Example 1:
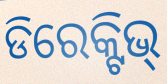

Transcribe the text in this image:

ଡିରେକ୍ଟିଭ୍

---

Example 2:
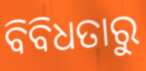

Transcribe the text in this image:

ବିବିଧତାରୁ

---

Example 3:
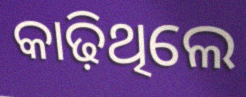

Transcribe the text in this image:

କାଢ଼ିଥିଲେ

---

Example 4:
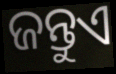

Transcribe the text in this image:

ଜନ୍ତୁଏ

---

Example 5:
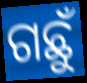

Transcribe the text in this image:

ଗଛୁଁ